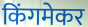
किंगमेकर